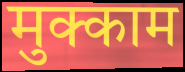
मुक्‍काम